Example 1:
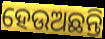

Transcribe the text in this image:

ହେଉଅଛନ୍ତି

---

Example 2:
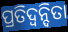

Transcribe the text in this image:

ପ୍ରତିଦ୍ୱନ୍ଦିତା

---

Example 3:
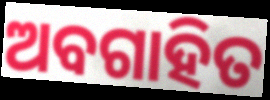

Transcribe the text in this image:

ଅବଗାହିତ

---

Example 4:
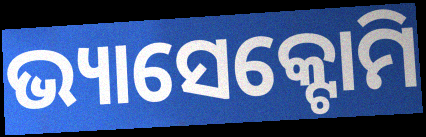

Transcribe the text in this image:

ଭ୍ୟାସେକ୍ଟୋମି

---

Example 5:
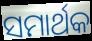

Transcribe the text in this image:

ସମାର୍ଥକ